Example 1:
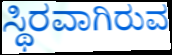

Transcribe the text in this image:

ಸ್ಥಿರವಾಗಿರುವ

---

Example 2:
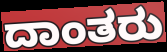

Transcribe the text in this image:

ದಾಂತರು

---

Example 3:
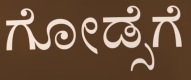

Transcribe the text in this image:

ಗೋಡ್ಸೆಗೆ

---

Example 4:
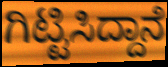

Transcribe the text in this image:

ಗಿಟ್ಟಿಸಿದ್ದಾನೆ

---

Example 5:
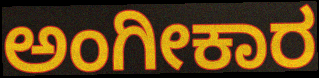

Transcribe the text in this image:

ಅಂಗೀಕಾರ